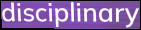
disciplinary